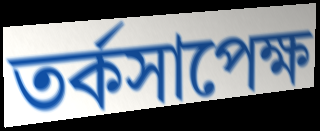
তর্কসাপেক্ষ